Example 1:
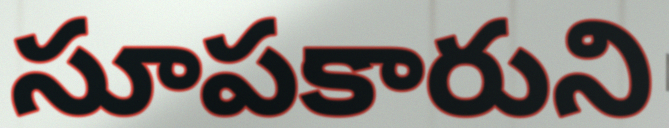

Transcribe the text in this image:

సూపకారుని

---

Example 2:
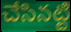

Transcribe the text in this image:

చేసినట్టి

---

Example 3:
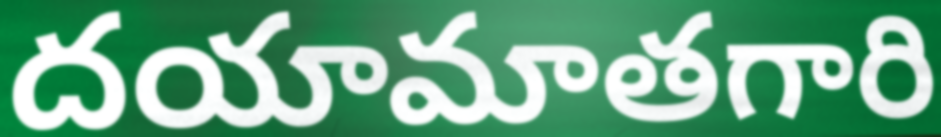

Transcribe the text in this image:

దయామాతగారి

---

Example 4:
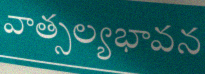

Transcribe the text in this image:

వాత్సల్యభావన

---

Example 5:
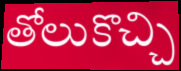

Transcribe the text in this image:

తోలుకొచ్చి